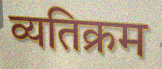
व्यतिक्रम